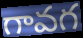
గావగ